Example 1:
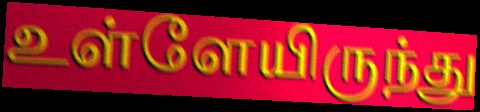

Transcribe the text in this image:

உள்ளேயிருந்து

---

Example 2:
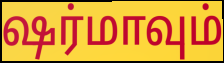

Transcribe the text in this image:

ஷர்மாவும்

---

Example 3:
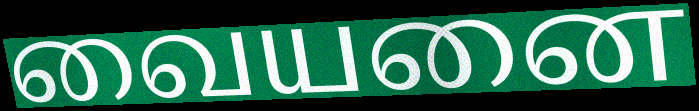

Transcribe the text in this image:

வையனை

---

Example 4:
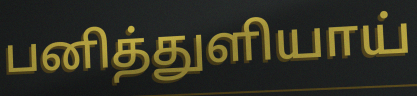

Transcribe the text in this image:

பனித்துளியாய்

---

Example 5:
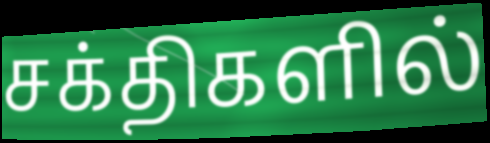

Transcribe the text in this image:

சக்திகளில்